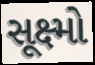
સૂક્ષ્મો